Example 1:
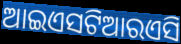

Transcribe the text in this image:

ଆଇଏସଟିଆରଏସି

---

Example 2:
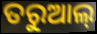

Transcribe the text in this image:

ତରୁଆଲ୍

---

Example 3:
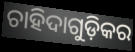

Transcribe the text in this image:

ଚାହିଦାଗୁଡ଼ିକର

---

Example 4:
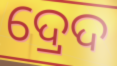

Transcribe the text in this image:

ଦ୍ରେଦ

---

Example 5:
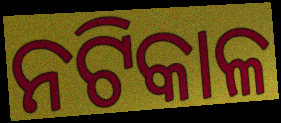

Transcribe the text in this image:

ନଟିକାଳ